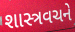
શાસ્ત્રવચને